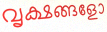
വൃക്ഷങ്ങളോ